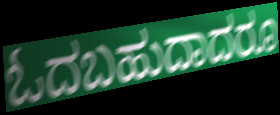
ಓದಬಹುದಾದರೂ